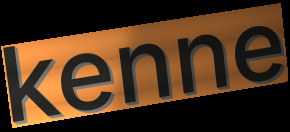
kenne